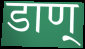
डाण्